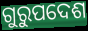
ଗୁରୁପଦେଶ